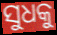
ସୁଧକୁ